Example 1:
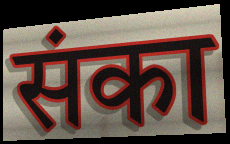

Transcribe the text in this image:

संका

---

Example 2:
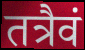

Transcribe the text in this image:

तत्रैवं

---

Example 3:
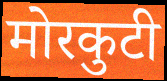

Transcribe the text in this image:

मोरकुटी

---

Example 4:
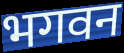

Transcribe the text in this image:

भगवन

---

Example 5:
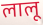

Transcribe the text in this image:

लालू